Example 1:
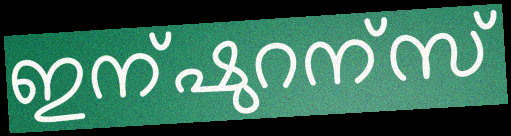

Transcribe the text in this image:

ഇന്ഷുറന്സ്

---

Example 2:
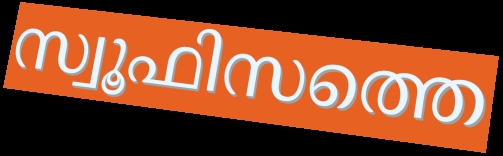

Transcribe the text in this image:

സ്വൂഫിസത്തെ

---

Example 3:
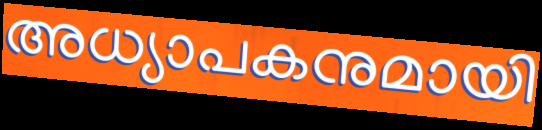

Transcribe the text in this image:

അധ്യാപകനുമായി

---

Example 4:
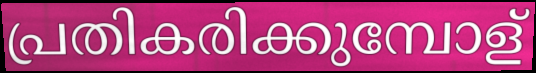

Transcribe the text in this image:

പ്രതികരിക്കുമ്പോള്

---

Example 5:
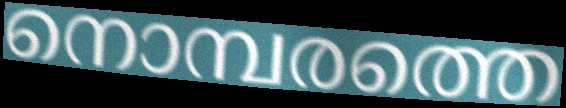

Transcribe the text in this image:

നൊമ്പരത്തെ